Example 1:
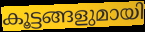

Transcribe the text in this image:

കൂട്ടങ്ങളുമായി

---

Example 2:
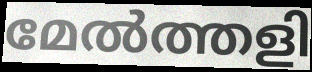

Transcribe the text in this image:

മേൽത്തളി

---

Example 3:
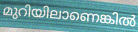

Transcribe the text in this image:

മുറിയിലാണെങ്കിൽ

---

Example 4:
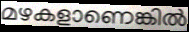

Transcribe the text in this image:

മഴകളാണെങ്കിൽ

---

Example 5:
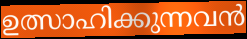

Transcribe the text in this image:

ഉത്സാഹിക്കുന്നവൻ